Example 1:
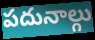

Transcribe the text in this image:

పదునాల్గు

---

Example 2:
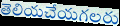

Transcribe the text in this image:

తెలియచేయగలరు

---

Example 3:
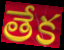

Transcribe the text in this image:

తేక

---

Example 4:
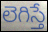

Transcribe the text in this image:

లెగిస్తే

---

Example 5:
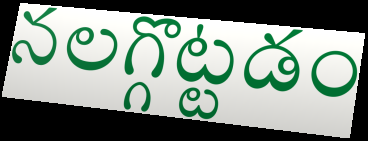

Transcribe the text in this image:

నలగ్గొట్టడం